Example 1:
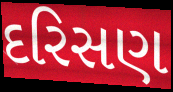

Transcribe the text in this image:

દરિસણ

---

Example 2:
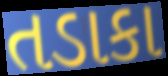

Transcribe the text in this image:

તડાકા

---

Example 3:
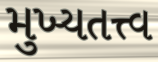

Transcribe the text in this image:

મુખ્યતત્ત્વ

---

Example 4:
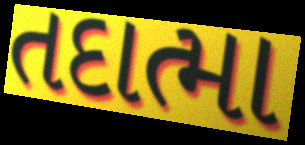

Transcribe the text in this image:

તદાત્મા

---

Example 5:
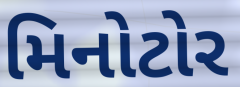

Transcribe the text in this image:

મિનોટોર